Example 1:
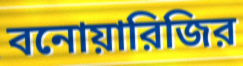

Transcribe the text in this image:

বনোয়ারিজির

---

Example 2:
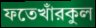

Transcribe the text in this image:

ফতেখাঁরকুল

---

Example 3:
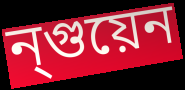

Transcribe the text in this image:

ন্গুয়েন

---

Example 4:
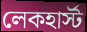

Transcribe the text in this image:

লেকহার্স্ট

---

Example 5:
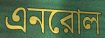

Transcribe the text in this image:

এনরোল